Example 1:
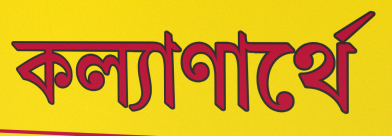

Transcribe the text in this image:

কল্যাণার্থে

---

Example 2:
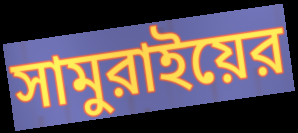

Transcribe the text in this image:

সামুরাইয়ের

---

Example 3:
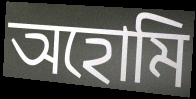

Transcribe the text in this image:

অহোমি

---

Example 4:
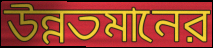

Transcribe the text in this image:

উন্নতমানের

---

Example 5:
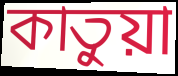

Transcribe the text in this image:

কাতুয়া